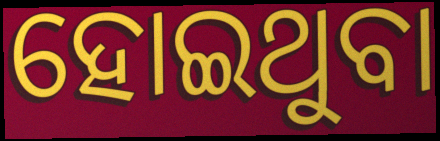
ହୋଇଥୁବା